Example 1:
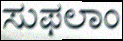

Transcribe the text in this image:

ಸುಫಲಾಂ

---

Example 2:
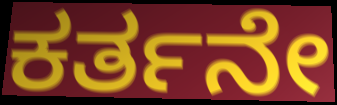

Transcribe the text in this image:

ಕರ್ತನೇ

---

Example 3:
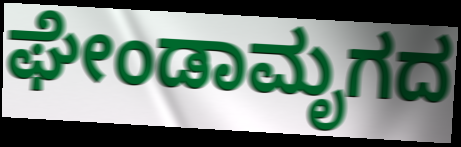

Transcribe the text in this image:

ಘೇಂಡಾಮೃಗದ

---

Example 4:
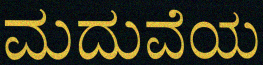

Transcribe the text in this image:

ಮದುವೆಯ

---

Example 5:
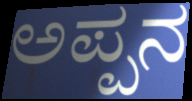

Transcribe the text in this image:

ಅಪ್ಪನ